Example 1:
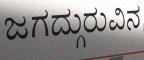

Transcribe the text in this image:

ಜಗದ್ಗುರುವಿನ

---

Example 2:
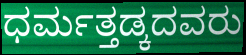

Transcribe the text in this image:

ಧರ್ಮತ್ತಡ್ಕದವರು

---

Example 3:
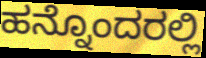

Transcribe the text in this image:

ಹನ್ನೊಂದರಲ್ಲಿ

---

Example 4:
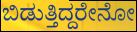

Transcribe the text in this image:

ಬಿಡುತ್ತಿದ್ದರೇನೋ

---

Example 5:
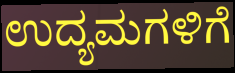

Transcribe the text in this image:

ಉದ್ಯಮಗಳಿಗೆ